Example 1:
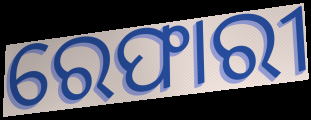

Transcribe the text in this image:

ରେଫାରୀ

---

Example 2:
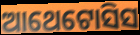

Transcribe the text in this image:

ଆଥେଟୋସିସ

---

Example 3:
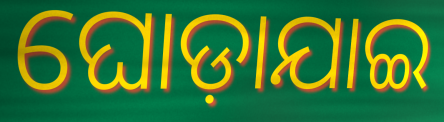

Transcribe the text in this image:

ଘୋଡ଼ାଯାଇ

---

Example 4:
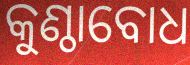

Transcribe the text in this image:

କୁଣ୍ଠାବୋଧ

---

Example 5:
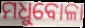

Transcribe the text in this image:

ମଧୁବୋଳା